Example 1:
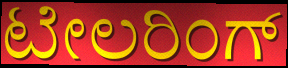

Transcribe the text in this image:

ಟೇಲರಿಂಗ್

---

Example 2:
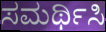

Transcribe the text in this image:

ಸಮರ್ಥಿಸಿ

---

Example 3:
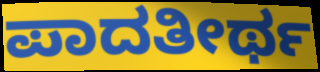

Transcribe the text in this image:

ಪಾದತೀರ್ಥ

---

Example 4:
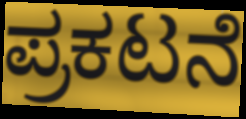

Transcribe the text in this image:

ಪ್ರಕಟನೆ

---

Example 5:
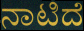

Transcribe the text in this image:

ನಾಟಿದೆ